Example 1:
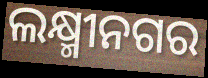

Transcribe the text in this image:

ଲକ୍ଷ୍ମୀନଗର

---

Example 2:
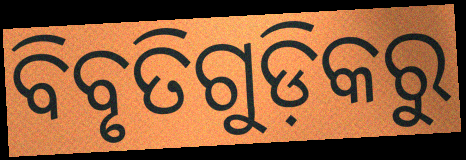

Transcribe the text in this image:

ବିବୃତିଗୁଡ଼ିକରୁ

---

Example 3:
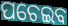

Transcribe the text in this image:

ପଚେଇବ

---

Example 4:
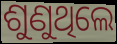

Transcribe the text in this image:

ଶୁଣୁଥିଲେ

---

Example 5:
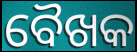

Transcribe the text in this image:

ବୈଖକ